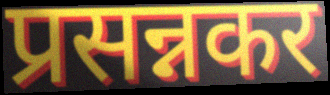
प्रसन्नकर